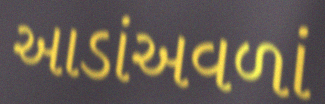
આડાંઅવળાં